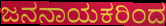
ಜನನಾಯಕರಿಂದ